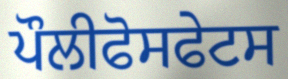
ਪੌਲੀਫੋਸਫੇਟਸ